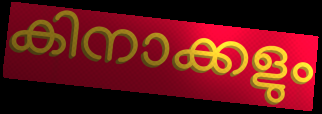
കിനാക്കളും